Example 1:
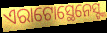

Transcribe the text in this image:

ଏରାଟୋସ୍ଥେନେସ୍ଙ୍କ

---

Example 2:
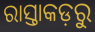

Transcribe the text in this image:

ରାସ୍ତାକଡ଼ରୁ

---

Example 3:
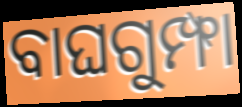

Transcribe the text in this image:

ବାଘଗୁମ୍ଫା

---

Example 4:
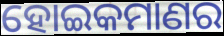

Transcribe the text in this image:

ହୋଇକମାଣର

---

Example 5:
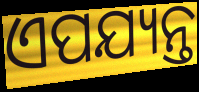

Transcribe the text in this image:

ଏପଯ୍ୟନ୍ତ